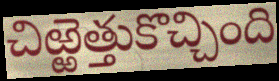
చిఱ్ఱెత్తుకొచ్చింది